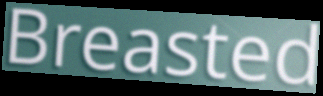
Breasted